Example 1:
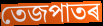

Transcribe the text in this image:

তেজপাতৰ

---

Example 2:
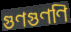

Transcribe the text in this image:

গুণগুণণি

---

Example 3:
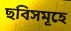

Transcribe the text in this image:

ছবিসমূহে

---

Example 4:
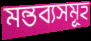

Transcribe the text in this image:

মন্তব্যসমূহ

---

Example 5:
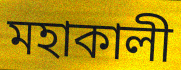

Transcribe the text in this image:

মহাকালী